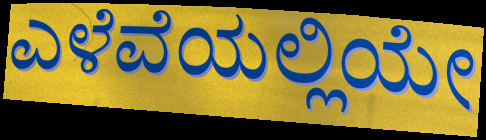
ಎಳೆವೆಯಲ್ಲಿಯೇ